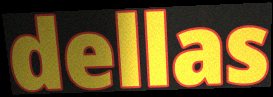
dellas